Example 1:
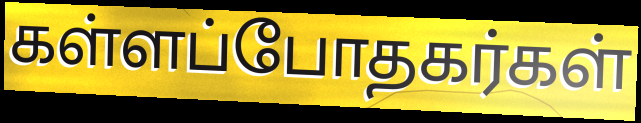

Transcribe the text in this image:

கள்ளப்போதகர்கள்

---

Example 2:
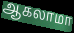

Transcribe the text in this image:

ஆகலாமா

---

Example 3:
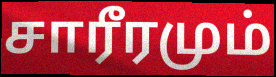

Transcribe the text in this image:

சாரீரமும்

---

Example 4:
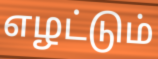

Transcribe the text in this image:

எழட்டும்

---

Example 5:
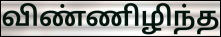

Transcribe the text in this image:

விண்ணிழிந்த